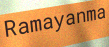
Ramayanma